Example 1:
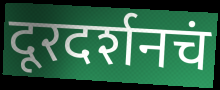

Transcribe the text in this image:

दूरदर्शनचं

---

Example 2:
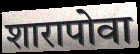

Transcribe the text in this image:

शारापोवा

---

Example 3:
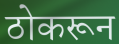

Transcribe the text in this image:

ठोकरून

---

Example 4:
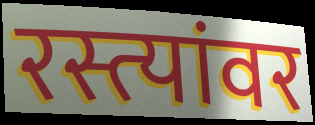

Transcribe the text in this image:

रस्त्यांवर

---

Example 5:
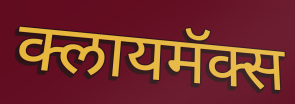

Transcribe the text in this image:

क्लायमॅक्स